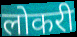
लोकरी